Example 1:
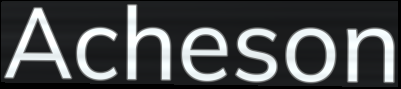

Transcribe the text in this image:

Acheson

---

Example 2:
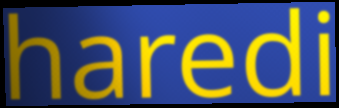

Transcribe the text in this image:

haredi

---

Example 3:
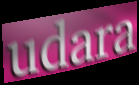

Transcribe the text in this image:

udara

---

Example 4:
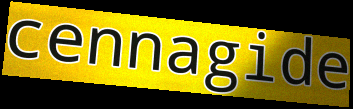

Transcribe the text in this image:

cennagide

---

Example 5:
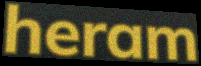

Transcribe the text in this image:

heram